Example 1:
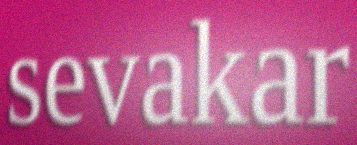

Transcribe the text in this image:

sevakar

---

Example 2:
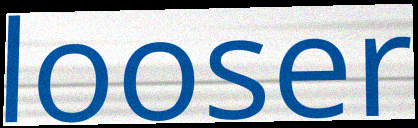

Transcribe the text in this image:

looser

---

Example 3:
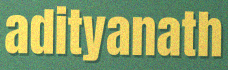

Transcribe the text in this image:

adityanath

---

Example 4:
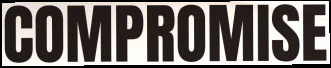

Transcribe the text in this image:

COMPROMISE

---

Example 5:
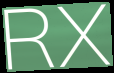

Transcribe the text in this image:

RX